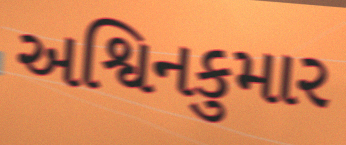
અશ્વિનકુમાર